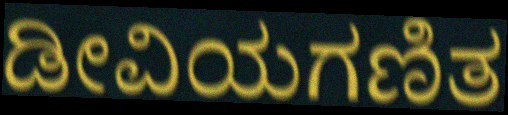
ಡೀವಿಯಗಣಿತ